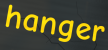
hanger